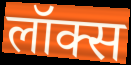
लॉक्स